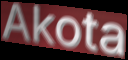
Akota